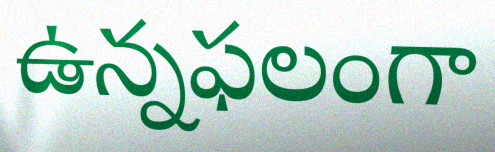
ఉన్నఫలంగా